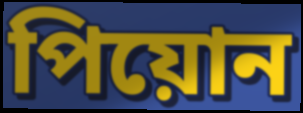
পিয়োন